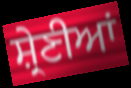
ਸ਼੍ਰੇਣੀਆਂ